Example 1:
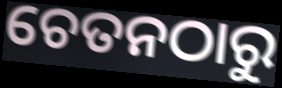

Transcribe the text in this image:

ଚେତନଠାରୁ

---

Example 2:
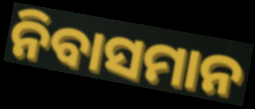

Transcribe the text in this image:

ନିବାସମାନ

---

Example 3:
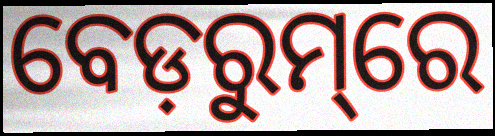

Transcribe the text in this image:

ବେଡ଼ରୁମ୍‌ରେ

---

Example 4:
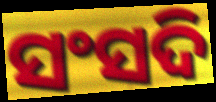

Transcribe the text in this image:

ସଂସଦି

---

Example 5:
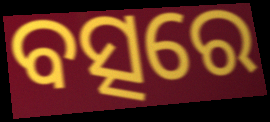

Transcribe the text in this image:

ବତ୍ସରେ